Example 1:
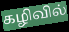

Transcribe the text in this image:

கழிவில்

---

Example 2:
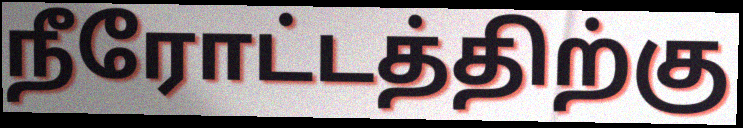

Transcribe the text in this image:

நீரோட்டத்திற்கு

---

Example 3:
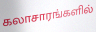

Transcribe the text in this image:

கலாசாரங்களில்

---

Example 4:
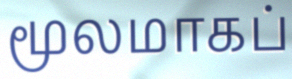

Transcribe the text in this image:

மூலமாகப்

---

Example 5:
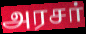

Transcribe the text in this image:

அரசர்